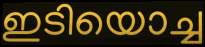
ഇടിയൊച്ച